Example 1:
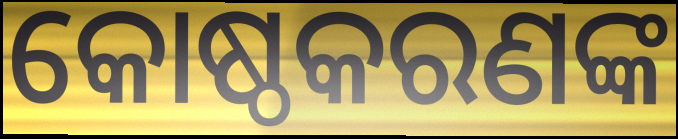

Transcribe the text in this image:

କୋଷ୍ଠକରଣଙ୍କ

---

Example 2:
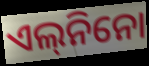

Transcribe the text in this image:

ଏଲ୍‌ନିନୋ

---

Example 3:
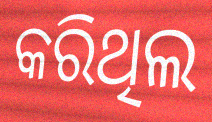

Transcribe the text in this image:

କରିଥିଲ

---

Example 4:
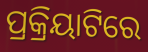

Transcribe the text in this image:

ପ୍ରକ୍ରିୟାଟିରେ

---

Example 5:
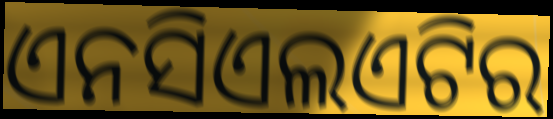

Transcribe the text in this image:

ଏନସିଏଲଏଟିର